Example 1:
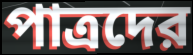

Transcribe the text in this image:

পাত্রদের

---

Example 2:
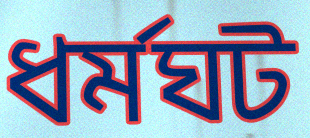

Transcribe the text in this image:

ধর্মঘট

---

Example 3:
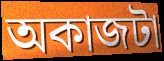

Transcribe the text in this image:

অকাজটা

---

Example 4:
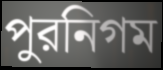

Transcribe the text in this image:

পুরনিগম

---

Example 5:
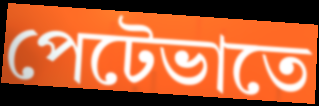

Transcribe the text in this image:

পেটেভাতে